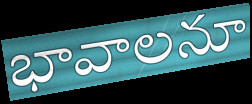
భావాలనూ